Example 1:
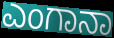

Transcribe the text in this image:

ಎಂಗಾನಾ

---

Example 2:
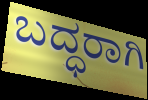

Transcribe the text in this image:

ಬದ್ಧರಾಗಿ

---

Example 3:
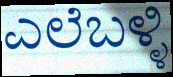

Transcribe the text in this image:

ಎಲೆಬಳ್ಳಿ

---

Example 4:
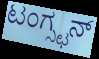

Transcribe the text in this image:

ಟಂಗ್ಸ್ಟನ್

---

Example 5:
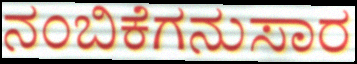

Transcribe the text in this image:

ನಂಬಿಕೆಗನುಸಾರ